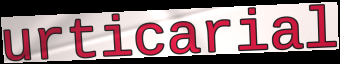
urticarial